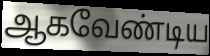
ஆகவேண்டிய